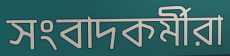
সংবাদকর্মীরা